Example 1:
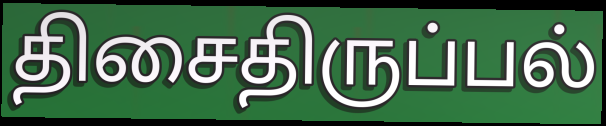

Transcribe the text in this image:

திசைதிருப்பல்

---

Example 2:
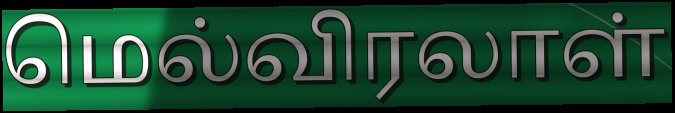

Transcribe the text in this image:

மெல்விரலாள்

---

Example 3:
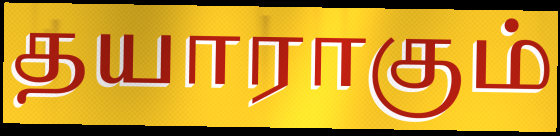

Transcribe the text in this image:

தயாராகும்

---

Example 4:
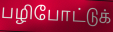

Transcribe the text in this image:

பழிபோட்டுக்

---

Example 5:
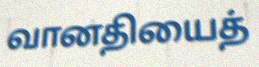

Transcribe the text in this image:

வானதியைத்